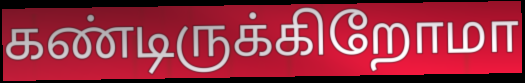
கண்டிருக்கிறோமா